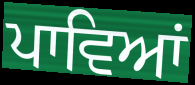
ਪਾਵਿਆਂ